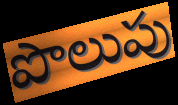
పొలుపు